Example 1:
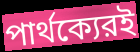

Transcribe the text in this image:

পার্থক্যেরই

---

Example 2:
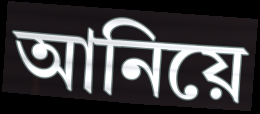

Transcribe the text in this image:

আনিয়ে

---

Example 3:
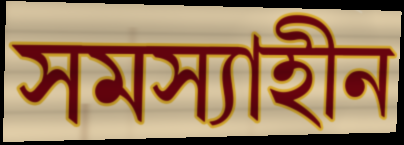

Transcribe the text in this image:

সমস্যাহীন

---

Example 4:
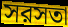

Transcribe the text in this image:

সরসতা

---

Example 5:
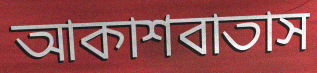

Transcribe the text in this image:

আকাশবাতাস